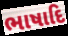
ભાષાદિ